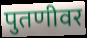
पुतणीवर